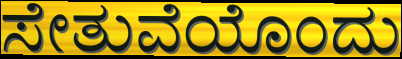
ಸೇತುವೆಯೊಂದು